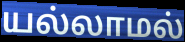
யல்லாமல்